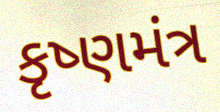
કૃષ્ણમંત્ર